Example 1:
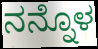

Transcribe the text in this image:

ನನ್ನೊಳ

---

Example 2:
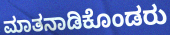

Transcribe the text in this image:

ಮಾತನಾಡಿಕೊಂಡರು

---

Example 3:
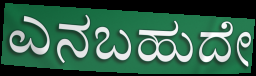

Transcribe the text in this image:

ಎನಬಹುದೇ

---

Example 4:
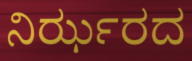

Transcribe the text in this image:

ನಿರ್ಝರದ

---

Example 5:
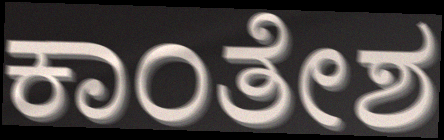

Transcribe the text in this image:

ಕಾಂತೇಶ